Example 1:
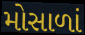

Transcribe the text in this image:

મોસાળાં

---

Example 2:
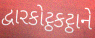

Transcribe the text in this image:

દ્વારકોટ્ઠકટ્ઠાને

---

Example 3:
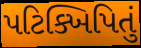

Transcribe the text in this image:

પટિક્ખિપિતું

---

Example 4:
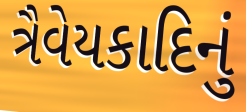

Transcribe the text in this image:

ત્રૈવેયકાદિનું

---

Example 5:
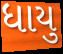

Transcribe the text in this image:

ધાયુ